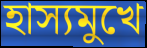
হাস্যমুখে